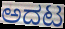
ಅದಟ